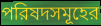
পরিষদসমূহের